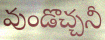
వుండొచ్చనీ